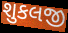
શુકલજી